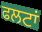
ਫਲਟਾਂ